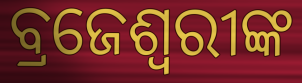
ବ୍ରଜେଶ୍ୱରୀଙ୍କ